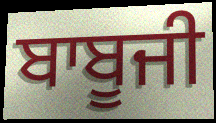
ਬਾਬੂਜੀ